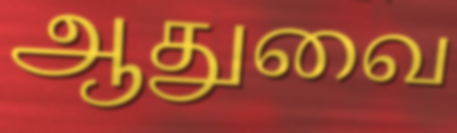
ஆதுவை